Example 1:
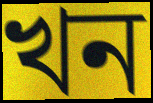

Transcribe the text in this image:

খন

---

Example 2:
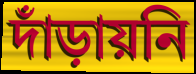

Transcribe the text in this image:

দাঁড়ায়নি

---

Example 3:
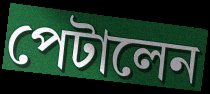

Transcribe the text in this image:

পেটালেন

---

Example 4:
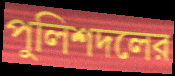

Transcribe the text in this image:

পুলিশদলের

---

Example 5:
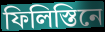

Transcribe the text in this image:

ফিলিস্তিনে